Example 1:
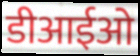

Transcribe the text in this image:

डीआईओ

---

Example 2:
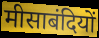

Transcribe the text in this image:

मीसाबंदियों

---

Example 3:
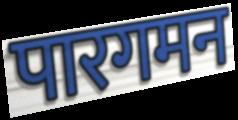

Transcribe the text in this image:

पारगमन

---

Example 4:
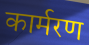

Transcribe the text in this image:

कार्मरण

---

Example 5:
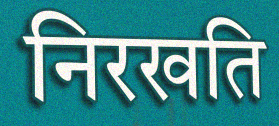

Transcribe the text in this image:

निरखति